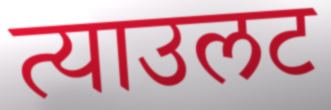
त्याउलट